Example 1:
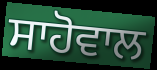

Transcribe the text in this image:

ਸਾਹੋਵਾਲ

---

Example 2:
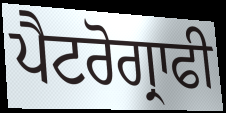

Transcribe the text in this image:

ਪੈਟਰੋਗ੍ਰਾਫੀ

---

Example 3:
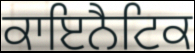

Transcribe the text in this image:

ਕਾਇਨੈਟਿਕ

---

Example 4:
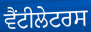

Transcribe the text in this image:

ਵੈਂਟੀਲੇਟਰਸ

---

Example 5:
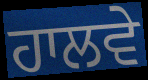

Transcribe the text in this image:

ਹਾਲਵੇ